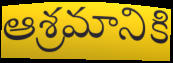
ఆశ్రమానికి